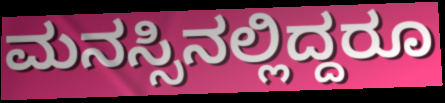
ಮನಸ್ಸಿನಲ್ಲಿದ್ದರೂ